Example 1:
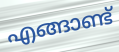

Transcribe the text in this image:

എങ്ങാണ്ട്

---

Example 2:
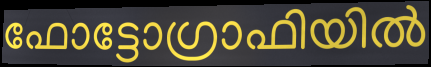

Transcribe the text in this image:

ഫോട്ടോഗ്രാഫിയിൽ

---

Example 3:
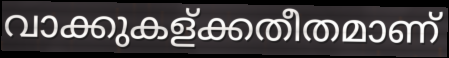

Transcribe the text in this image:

വാക്കുകള്ക്കതീതമാണ്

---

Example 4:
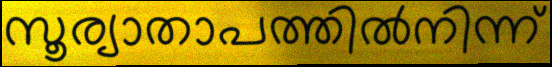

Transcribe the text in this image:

സൂര്യാതാപത്തിൽനിന്ന്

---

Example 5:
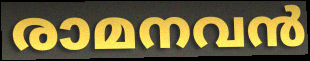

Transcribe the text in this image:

രാമനവൻ